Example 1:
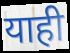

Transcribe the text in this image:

याही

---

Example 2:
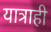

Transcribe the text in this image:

यात्राही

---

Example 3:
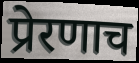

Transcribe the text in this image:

प्रेरणाच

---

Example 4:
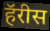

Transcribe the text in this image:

हॅरीस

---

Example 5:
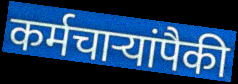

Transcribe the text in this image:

कर्मचार्‍यांपैकी